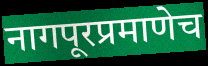
नागपूरप्रमाणेच